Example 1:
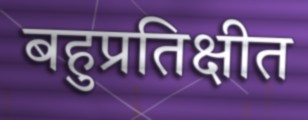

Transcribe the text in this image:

बहुप्रतिक्षीत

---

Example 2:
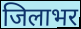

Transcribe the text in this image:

जिलाभर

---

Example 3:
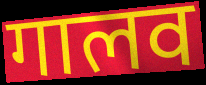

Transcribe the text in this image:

गालव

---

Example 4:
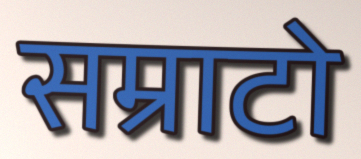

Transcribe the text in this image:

सम्राटो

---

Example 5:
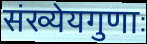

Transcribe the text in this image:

संख्येयगुणाः